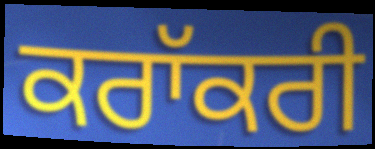
ਕਰਾੱਕਰੀ